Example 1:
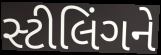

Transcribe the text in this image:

સ્ટીલિંગને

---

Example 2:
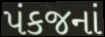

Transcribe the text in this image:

પંકજનાં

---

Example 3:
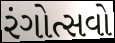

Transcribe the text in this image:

રંગોત્સવો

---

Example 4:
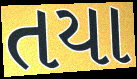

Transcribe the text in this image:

તયા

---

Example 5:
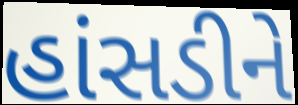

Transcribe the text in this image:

હાંસડીને